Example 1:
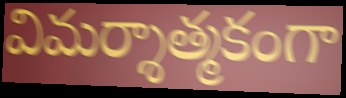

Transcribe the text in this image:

విమర్శాత్మకంగా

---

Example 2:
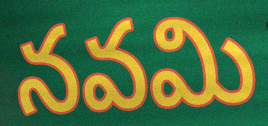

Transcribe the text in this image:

నవమి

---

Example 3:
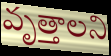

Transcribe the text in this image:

వృత్తాలని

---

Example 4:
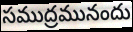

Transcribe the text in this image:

సముద్రమునందు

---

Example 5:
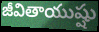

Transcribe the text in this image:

జీవితాయుష్షు